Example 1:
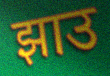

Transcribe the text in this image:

झाउ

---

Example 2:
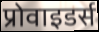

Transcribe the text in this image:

प्रोवाइडर्स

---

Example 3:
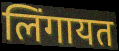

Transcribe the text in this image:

लिंगायत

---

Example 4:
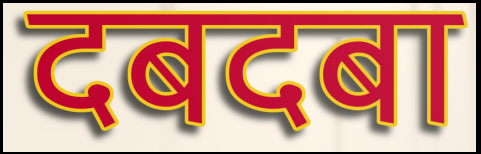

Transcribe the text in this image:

दबदबा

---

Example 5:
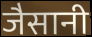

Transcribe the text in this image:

जैसानी